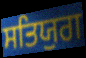
ਸਤਿਯੁਗ